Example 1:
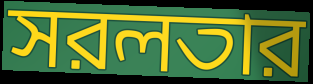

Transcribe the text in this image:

সরলতার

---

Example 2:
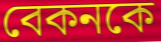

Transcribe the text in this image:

বেকনকে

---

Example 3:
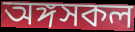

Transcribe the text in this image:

অঙ্গসকল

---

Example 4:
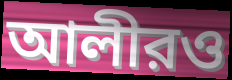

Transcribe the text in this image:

আলীরও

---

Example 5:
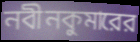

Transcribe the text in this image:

নবীনকুমারের